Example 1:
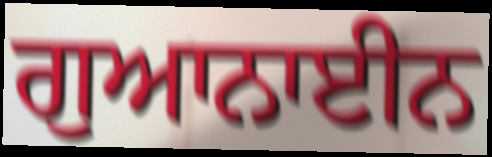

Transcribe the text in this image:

ਗੁਆਨਾਈਨ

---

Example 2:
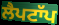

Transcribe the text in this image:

ਲੈਪਟਾੱਪ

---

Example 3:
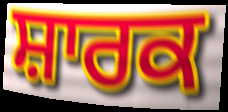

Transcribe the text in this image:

ਸ਼ਾਰਕ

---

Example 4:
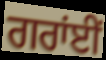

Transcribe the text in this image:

ਗਰਾਂਈਂ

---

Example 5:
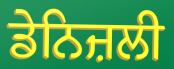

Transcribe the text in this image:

ਡੇਨਿਜ਼ਲੀ